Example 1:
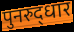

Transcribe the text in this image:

पुनरुद्धार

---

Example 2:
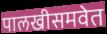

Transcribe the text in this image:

पालखीसमवेत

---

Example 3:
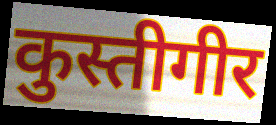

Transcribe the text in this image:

कुस्तीगीर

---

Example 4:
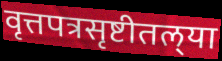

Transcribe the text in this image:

वृत्तपत्रसृष्टीतल्या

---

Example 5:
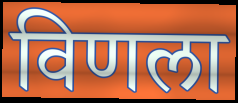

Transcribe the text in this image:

विणला